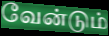
வேன்டும்